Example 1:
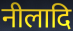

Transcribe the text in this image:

नीलादि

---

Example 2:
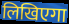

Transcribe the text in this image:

लिखिएगा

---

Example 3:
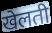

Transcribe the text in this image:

खेलती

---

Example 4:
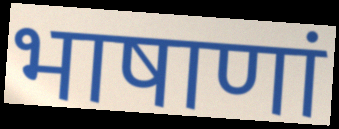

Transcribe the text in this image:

भाषाणां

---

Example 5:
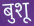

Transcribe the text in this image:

बुशू